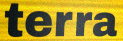
terra